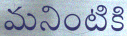
మనింటికి